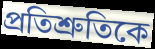
প্রতিশ্রুতিকে